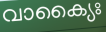
വാക്യൈഃ